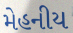
મેહનીય